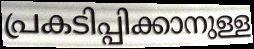
പ്രകടിപ്പിക്കാനുള്ള